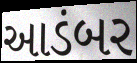
આડંબર